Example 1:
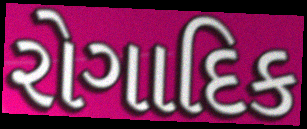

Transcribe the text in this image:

રોગાદિક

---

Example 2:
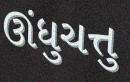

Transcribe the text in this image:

ઊંધુચત્તુ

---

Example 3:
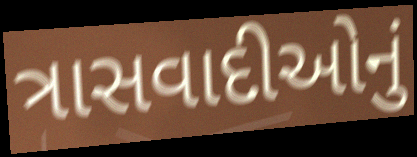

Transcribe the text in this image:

ત્રાસવાદીઓનું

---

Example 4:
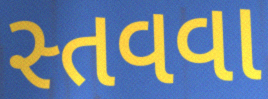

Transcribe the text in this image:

સ્તવવા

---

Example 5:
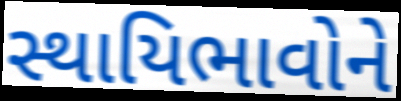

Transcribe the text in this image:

સ્થાયિભાવોને